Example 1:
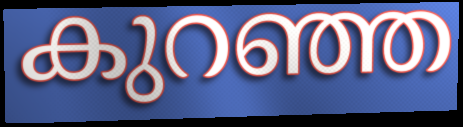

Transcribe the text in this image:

കുറഞ്ഞ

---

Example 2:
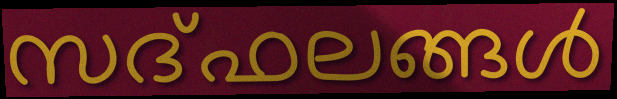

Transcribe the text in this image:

സദ്ഫലങ്ങൾ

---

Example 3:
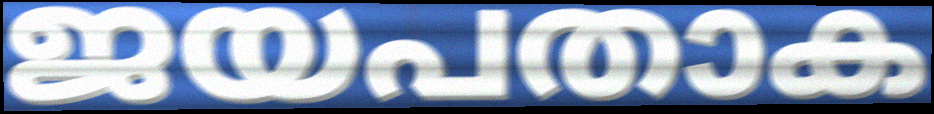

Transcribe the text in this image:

ജയപതാക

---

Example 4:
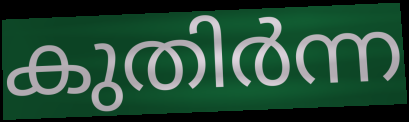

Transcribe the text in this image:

കുതിർന്ന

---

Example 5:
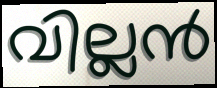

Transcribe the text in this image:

വില്ലൻ